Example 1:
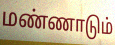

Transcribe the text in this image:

மண்ணாடும்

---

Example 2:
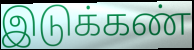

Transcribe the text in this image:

இடுக்கண்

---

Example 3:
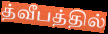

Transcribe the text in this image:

த்வீபத்தில்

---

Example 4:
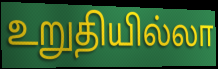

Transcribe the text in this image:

உறுதியில்லா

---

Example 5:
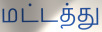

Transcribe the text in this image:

மட்டத்து